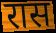
रास